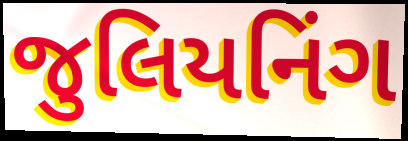
જુલિયનિંગ